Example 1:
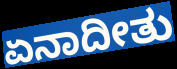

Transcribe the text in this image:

ಏನಾದೀತು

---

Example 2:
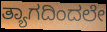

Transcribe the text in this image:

ತ್ಯಾಗದಿಂದಲೇ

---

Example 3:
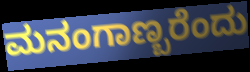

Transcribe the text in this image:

ಮನಂಗಾಣ್ಬರೆಂದು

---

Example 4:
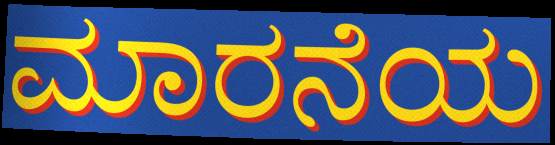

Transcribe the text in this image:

ಮಾರನೆಯ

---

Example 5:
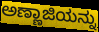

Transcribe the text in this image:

ಅಣ್ಣಾಜಿಯನ್ನು